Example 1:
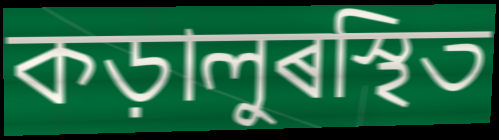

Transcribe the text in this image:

কড়ালুৰস্থিত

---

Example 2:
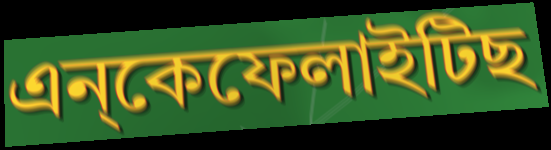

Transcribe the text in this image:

এন্কেফেলাইটিছ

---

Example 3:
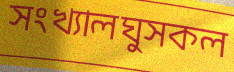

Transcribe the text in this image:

সংখ্যালঘুসকল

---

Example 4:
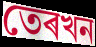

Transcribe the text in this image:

তেৰখন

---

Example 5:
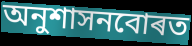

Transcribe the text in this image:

অনুশাসনবোৰত